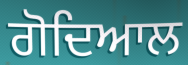
ਗੋਦਿਆਲ